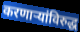
करणाऱ्यांविरुद्ध